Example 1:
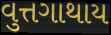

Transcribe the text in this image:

વુત્તગાથાય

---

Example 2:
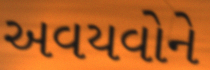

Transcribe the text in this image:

અવયવોને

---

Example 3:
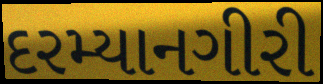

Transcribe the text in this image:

દરમ્યાનગીરી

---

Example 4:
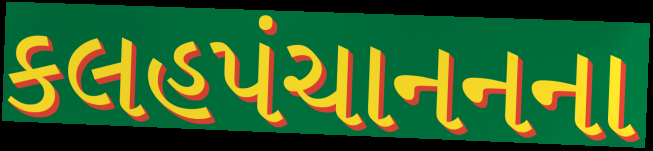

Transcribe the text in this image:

કલહપંચાનનના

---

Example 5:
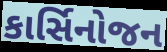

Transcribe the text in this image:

કાર્સિનોજન